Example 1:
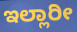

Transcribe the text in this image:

ಇಲ್ಲಾರೀ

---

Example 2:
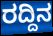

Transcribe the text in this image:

ರದ್ದಿನ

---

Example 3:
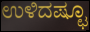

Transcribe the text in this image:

ಉಳಿದಷ್ಟೂ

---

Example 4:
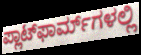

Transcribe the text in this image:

ಪ್ಲಾಟ್‌ಫಾರ್ಮ್‌ಗಳಲ್ಲಿ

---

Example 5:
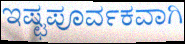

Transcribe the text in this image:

ಇಷ್ಟಪೂರ್ವಕವಾಗಿ